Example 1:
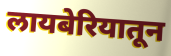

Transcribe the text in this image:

लायबेरियातून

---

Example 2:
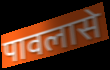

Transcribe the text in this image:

पावलासे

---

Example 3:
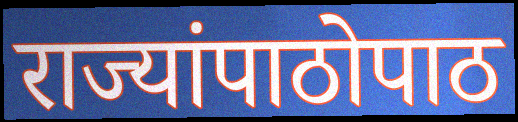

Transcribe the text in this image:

राज्यांपाठोपाठ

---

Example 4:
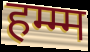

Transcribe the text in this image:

हम्म्म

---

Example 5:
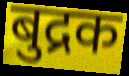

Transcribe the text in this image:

बुद्रक